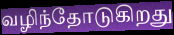
வழிந்தோடுகிறது